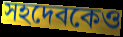
সহদেবকেও